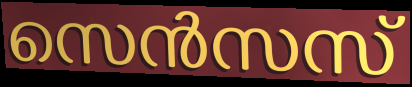
സെൻസസ്